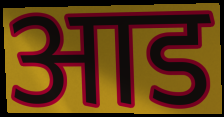
आड